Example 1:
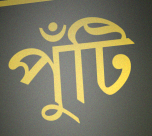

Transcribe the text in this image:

পুঁটি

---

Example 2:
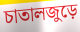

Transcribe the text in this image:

চাতালজুড়ে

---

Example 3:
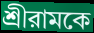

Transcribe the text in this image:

শ্রীরামকে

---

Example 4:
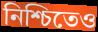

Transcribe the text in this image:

নিশ্চিতেও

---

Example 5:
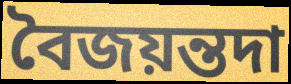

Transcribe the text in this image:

বৈজয়ন্তদা